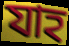
যাহ